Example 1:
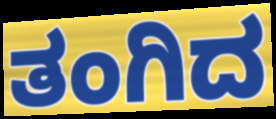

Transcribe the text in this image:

ತಂಗಿದ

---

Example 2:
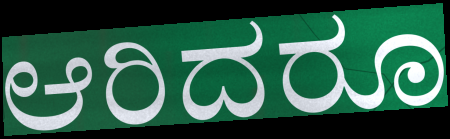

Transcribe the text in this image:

ಆರಿದರೂ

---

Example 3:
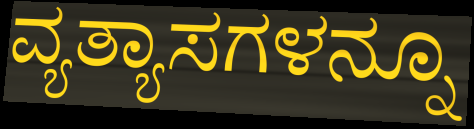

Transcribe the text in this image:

ವ್ಯತ್ಯಾಸಗಳನ್ನೂ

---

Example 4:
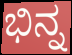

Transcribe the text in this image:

ಭಿನ್ನ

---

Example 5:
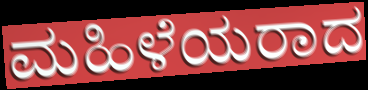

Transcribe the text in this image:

ಮಹಿಳೆಯರಾದ